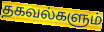
தகவல்களும்